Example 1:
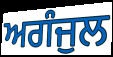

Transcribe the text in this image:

ਅਗੰਜੁਲ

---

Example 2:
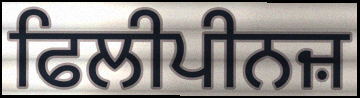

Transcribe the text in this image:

ਫਿਲੀਪੀਨਜ਼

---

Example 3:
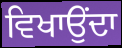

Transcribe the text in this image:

ਵਿਖਾਉਂਦਾ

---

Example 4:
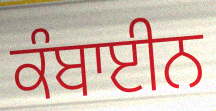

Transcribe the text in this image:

ਕੰਬਾਈਨ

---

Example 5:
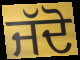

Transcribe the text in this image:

ਜੱਦੋ